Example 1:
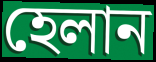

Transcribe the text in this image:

হেলান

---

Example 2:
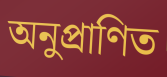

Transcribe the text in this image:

অনুপ্ৰাণিত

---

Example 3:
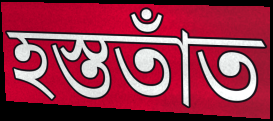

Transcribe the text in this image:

হস্ততাঁত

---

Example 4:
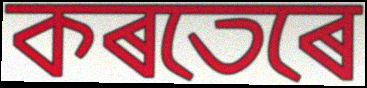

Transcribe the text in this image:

কৰতেৰে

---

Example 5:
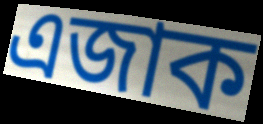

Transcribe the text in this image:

এজাক